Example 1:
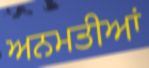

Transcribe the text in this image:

ਅਨਮਤੀਆਂ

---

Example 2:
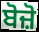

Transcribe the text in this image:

ਬੋਜ਼ੋ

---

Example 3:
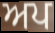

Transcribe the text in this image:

ਅਪ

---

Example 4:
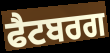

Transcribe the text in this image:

ਫੈਟਬਰਗ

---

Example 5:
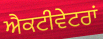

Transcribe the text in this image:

ਐਕਟੀਵੇਟਰਾਂ